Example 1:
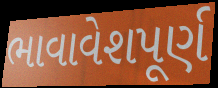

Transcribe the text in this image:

ભાવાવેશપૂર્ણ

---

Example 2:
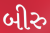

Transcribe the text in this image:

બીરુ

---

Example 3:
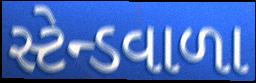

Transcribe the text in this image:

સ્ટેન્ડવાળા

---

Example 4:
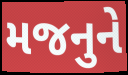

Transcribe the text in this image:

મજનુને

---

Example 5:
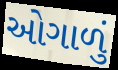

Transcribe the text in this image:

ઓગાળું